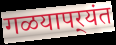
गळयापर्यंत